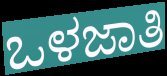
ಒಳಜಾತಿ